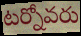
టర్నోవరు